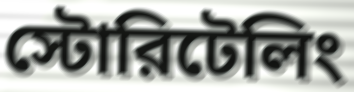
স্টোরিটেলিং